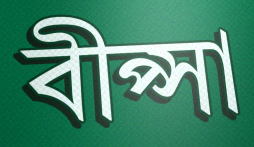
বীপ্সা